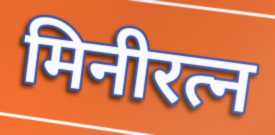
मिनीरत्न